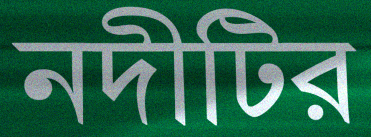
নদীটির